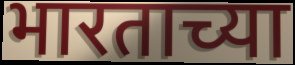
भारताच्या